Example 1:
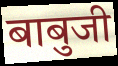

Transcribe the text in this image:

बाबुजी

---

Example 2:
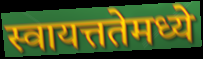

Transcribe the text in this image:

स्वायत्ततेमध्ये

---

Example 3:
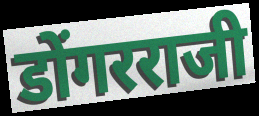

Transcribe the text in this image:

डोंगरराजी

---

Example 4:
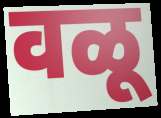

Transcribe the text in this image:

वळू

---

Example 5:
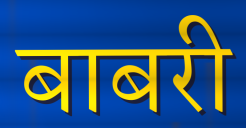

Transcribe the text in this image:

बाबरी